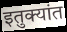
इतुक्यांत